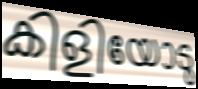
കിളിയോടു